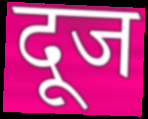
दूज